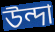
উন্দা